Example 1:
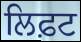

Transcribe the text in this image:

ਲਿਫ਼ਟ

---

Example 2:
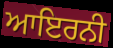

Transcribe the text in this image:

ਆਇਰਨੀ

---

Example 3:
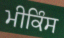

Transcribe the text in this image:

ਮੀਕਿੰਸ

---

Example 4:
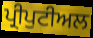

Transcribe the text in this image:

ਪ੍ਰੀਪੁਟੀਅਲ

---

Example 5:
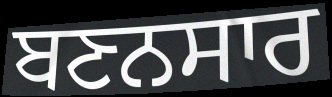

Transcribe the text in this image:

ਬਣਨਸਾਰ